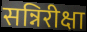
सन्निरीक्षा